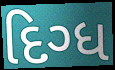
દિગ્ધ